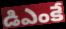
డిఎంకే